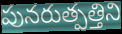
పునరుత్పత్తిని